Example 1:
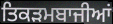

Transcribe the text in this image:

ਤਿਕੜਮਬਾਜੀਆਂ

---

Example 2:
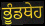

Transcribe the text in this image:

ਭੂੰਡਥੇਹ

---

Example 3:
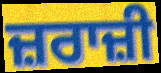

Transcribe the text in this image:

ਜ਼ਰਾਜ਼ੀ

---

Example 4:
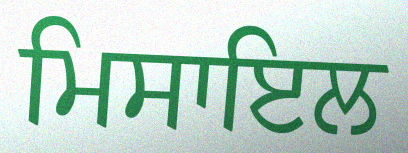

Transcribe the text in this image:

ਮਿਸਾਇਲ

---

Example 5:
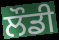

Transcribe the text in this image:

ਲੌਡੀ